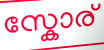
സ്കോര്